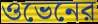
ওভেনের